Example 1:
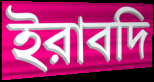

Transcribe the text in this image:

ইরাবদি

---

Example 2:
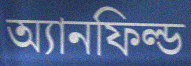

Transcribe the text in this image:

অ্যানফিল্ড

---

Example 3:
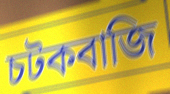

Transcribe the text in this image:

চটকবাজি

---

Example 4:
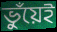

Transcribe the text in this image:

ভুঁয়েই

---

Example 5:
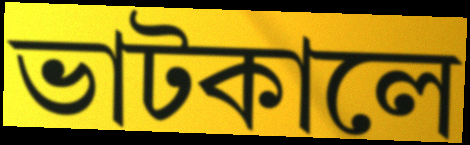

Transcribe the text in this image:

ভাটকালে